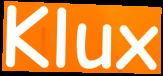
Klux